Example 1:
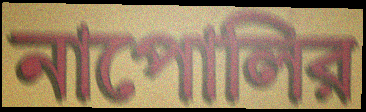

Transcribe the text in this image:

নাপোলির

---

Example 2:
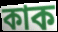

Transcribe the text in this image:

কাক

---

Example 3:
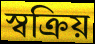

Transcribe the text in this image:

স্বক্রিয়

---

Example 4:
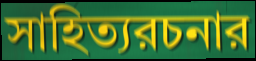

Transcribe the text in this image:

সাহিত্যরচনার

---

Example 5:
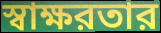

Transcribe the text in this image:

স্বাক্ষরতার